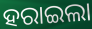
ହରାଇଲା